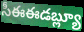
సీఈఈడబ్ల్యూ